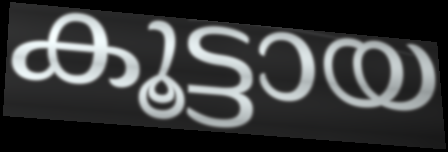
കൂട്ടായ